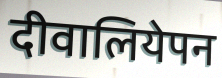
दीवालियेपन